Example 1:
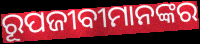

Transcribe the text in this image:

ରୂପଜୀବୀମାନଙ୍କର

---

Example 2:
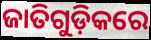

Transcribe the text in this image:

ଜାତିଗୁଡ଼ିକରେ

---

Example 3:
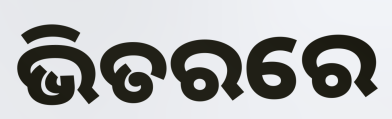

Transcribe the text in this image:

ଭିତରରେ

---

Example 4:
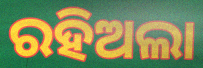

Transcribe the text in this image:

ରହିଅଲା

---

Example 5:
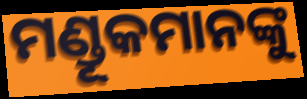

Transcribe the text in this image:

ମଣ୍ଡୂକମାନଙ୍କୁ